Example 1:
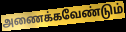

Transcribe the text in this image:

அணைக்கவேண்டும்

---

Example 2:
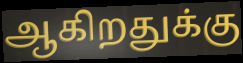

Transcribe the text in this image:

ஆகிறதுக்கு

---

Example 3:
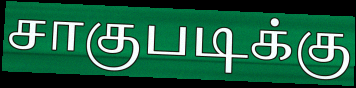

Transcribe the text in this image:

சாகுபடிக்கு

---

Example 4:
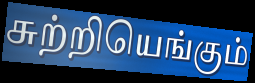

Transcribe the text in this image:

சுற்றியெங்கும்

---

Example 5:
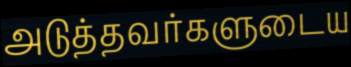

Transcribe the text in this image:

அடுத்தவர்களுடைய